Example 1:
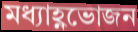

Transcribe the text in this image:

মধ্যাহ্ণভোজন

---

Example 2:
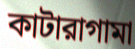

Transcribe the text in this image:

কাটারাগামা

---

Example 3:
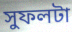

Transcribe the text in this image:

সুফলটা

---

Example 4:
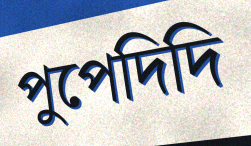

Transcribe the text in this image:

পুপেদিদি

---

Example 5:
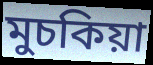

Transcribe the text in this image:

মুচকিয়া